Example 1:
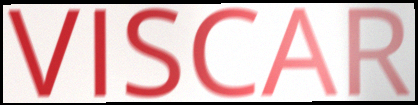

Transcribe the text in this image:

VISCAR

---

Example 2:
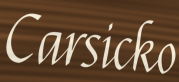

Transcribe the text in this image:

Carsicko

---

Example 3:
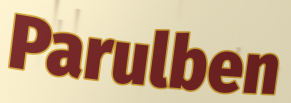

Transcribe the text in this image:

Parulben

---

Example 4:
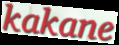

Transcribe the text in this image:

kakane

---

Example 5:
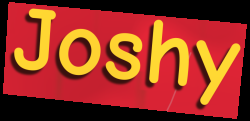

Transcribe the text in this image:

Joshy